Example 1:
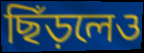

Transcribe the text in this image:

ছিঁড়লেও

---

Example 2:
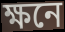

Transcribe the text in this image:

ক্ষনে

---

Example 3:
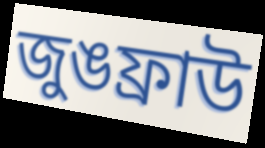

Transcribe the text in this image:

জুঙফ্রাউ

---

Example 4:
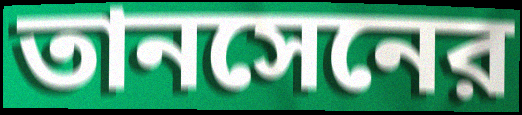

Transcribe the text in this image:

তানসেনের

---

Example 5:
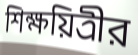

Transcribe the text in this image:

শিক্ষয়িত্রীর